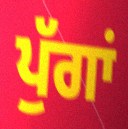
ਪੁੱਗਾਂ